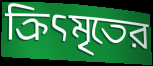
ক্রিৎমৃতের